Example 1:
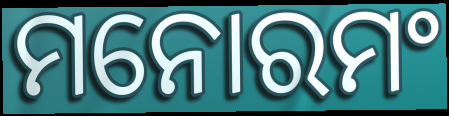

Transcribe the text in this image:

ମନୋରମଂ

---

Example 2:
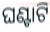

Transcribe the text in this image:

ଘଣ୍ଟାଟି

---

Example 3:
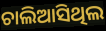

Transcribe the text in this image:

ଚାଲିଆସିଥିଲ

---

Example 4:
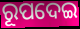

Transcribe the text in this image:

ରୂପଦେଇ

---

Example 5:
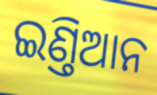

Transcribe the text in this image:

ଇଣ୍ତିଆନ